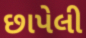
છાપેલી